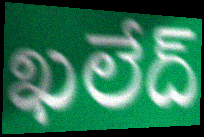
ఖలేద్